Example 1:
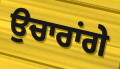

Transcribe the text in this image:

ਉਚਾਰਾਂਗੇ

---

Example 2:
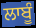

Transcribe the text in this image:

ਲਾਬੂੰ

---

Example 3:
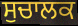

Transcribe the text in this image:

ਸੁਚਾਲਕ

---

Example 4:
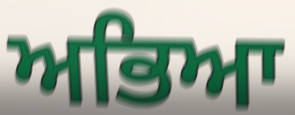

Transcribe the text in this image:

ਅਭਿਆ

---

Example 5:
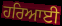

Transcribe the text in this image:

ਹਰਿਆਈ